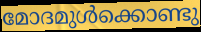
മോദമുൾക്കൊണ്ടു